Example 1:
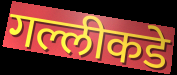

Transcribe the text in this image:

गल्लीकडे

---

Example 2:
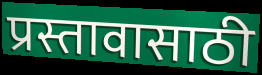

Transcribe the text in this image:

प्रस्तावासाठी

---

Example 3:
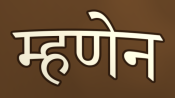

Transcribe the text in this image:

म्हणेन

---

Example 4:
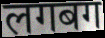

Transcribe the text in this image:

लगबग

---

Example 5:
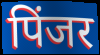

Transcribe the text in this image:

पिंजर